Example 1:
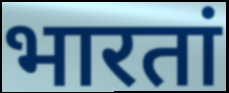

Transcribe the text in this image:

भारतां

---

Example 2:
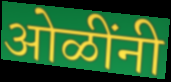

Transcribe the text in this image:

ओळींनी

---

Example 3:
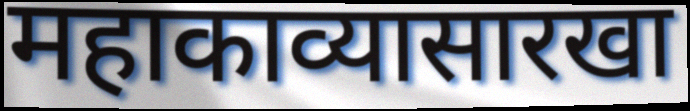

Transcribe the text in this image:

महाकाव्यासारखा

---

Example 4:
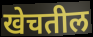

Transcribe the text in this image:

खेचतील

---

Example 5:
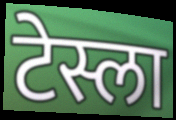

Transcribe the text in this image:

टेस्ला